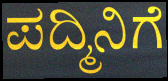
ಪದ್ಮಿನಿಗೆ